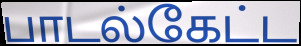
பாடல்கேட்ட